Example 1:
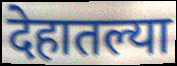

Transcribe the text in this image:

देहातल्या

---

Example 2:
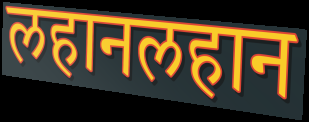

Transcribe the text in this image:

लहानलहान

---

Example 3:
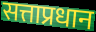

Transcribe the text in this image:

सत्ताप्रधान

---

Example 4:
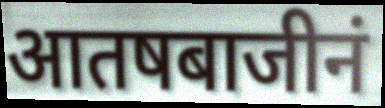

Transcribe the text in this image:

आतषबाजीनं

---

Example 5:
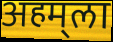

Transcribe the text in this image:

अहम्‌ला